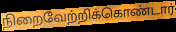
நிறைவேற்றிக்கொண்டார்